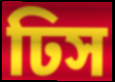
ঢিস